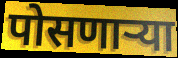
पोसणाऱ्या